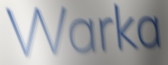
Warka